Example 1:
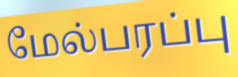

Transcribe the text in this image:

மேல்பரப்பு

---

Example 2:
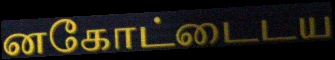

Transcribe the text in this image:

னகோட்டைடய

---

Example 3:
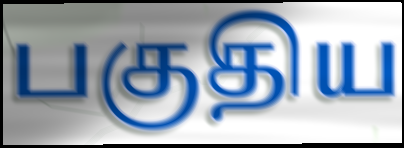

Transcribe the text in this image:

பகுதிய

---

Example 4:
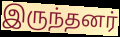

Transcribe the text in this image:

இருந்தனர்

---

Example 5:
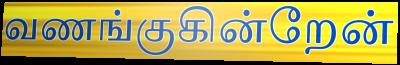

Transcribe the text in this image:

வணங்குகின்றேன்